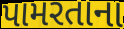
પામરતાના